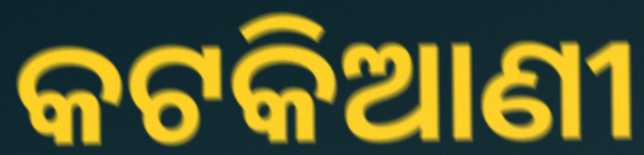
କଟକିଆଣୀ